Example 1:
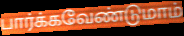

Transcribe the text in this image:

பார்க்கவேண்டுமாம்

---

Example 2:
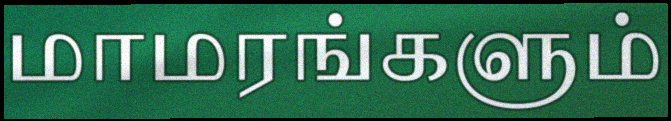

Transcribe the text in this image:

மாமரங்களும்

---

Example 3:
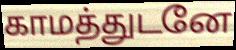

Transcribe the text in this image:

காமத்துடனே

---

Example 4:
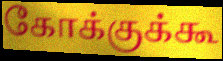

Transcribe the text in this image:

கோக்குக்கூ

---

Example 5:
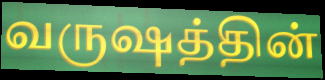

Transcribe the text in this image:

வருஷத்தின்